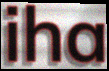
iha